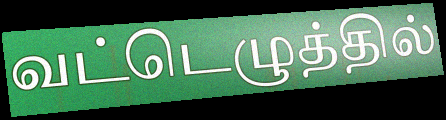
வட்டெழுத்தில்